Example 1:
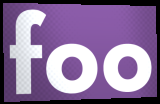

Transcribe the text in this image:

foo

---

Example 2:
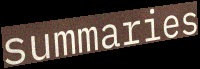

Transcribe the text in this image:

summaries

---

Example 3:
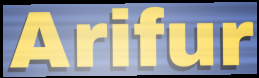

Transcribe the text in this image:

Arifur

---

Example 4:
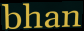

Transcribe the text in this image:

bhan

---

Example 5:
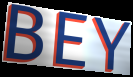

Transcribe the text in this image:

BEY